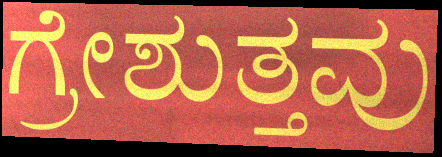
ಗ್ರೇಶುತ್ತವು